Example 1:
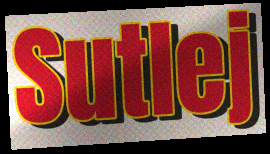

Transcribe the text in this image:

Sutlej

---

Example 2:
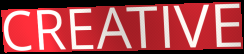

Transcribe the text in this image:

CREATIVE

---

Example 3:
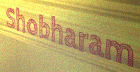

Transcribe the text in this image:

Shobharam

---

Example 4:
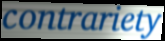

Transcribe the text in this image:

contrariety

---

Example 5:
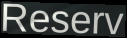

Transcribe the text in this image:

Reserv